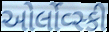
ઓર્લોવ્સ્કી